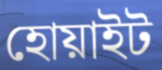
হোয়াইট